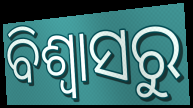
ବିଶ୍ବାସରୁ